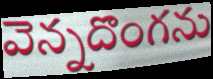
వెన్నదొంగను